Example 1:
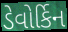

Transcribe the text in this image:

ડેવોર્કિન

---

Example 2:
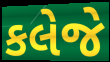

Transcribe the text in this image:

કલેજે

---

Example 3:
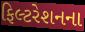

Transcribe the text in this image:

ફિલ્ટરેશનના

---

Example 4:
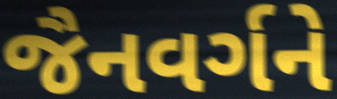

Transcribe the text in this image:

જૈનવર્ગને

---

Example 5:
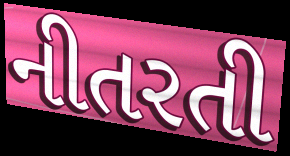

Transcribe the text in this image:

નીતરતી